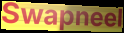
Swapneel